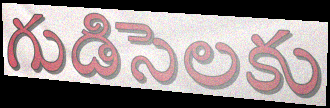
గుడిసెలకు